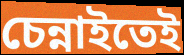
চেন্নাইতেই